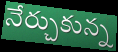
నేర్చుకున్న